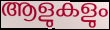
ആളുകളും